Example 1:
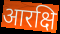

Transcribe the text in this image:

आरक्षि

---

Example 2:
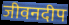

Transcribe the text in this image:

जीवनदीप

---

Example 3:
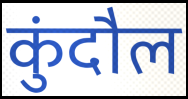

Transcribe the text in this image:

कुंदौल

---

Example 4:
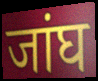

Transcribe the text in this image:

जांघ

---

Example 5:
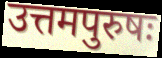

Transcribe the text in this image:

उत्तमपुरुषः